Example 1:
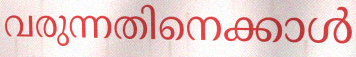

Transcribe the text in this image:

വരുന്നതിനെക്കാൾ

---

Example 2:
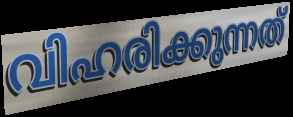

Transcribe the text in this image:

വിഹരിക്കുന്നത്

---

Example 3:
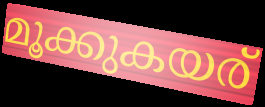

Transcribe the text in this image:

മൂക്കുകയര്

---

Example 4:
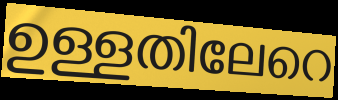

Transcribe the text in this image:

ഉള്ളതിലേറെ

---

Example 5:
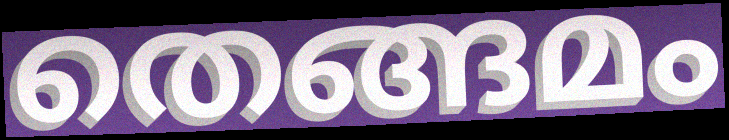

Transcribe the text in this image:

തെങ്ങമം